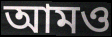
আমও